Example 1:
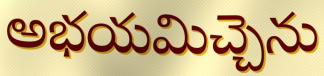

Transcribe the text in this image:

అభయమిచ్చెను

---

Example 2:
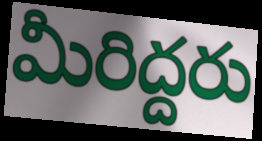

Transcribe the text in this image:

మీరిద్దరు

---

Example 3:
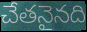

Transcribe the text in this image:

చేతనైనది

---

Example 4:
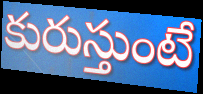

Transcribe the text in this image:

కురుస్తుంటే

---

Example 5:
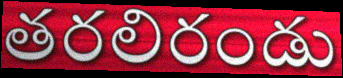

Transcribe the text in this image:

తరలిరండు